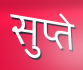
सुप्ते